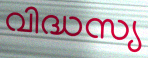
വിദ്ധസ്യ